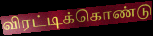
விரட்டிக்கொண்டு